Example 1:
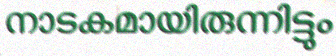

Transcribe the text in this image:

നാടകമായിരുന്നിട്ടും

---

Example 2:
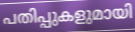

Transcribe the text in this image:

പതിപ്പുകളുമായി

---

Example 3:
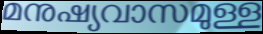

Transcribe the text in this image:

മനുഷ്യവാസമുള്ള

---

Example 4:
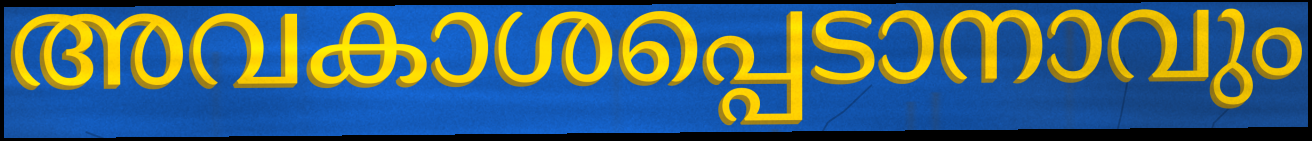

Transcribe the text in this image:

അവകാശപ്പെടാനാവും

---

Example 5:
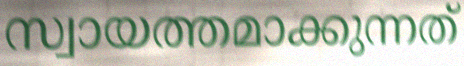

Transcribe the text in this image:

സ്വായത്തമാക്കുന്നത്